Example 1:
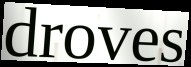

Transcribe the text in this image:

droves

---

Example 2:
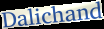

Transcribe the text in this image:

Dalichand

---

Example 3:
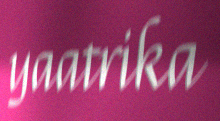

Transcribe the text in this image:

yaatrika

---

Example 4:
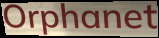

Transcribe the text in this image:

Orphanet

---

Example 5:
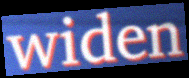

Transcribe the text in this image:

widen